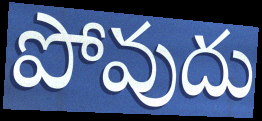
పోవుదు